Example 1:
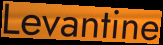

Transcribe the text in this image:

Levantine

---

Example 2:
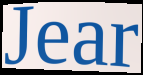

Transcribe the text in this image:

Jear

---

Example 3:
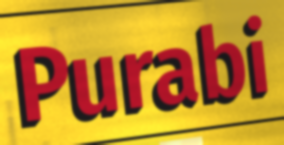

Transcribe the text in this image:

Purabi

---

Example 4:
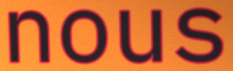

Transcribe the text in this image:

nous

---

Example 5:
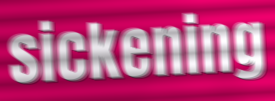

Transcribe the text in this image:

sickening